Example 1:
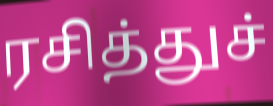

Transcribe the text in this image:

ரசித்துச்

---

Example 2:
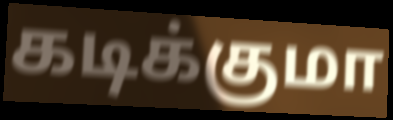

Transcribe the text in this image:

கடிக்குமா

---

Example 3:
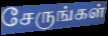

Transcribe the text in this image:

சேருங்கள்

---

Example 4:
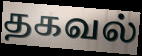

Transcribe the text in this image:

தகவல்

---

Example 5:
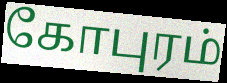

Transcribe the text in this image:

கோபுரம்